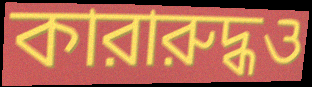
কারারুদ্ধও